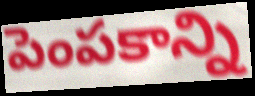
పెంపకాన్ని